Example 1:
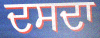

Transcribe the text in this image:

ਦਸਦਾ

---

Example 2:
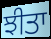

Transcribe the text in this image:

ਝੀਤਾ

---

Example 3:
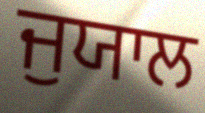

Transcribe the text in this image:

ਜੁਯਾਲ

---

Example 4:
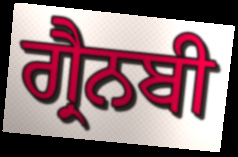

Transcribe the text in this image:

ਗ੍ਰੈਨਬੀ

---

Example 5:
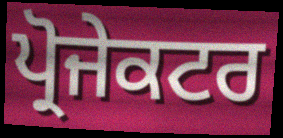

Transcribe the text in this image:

ਪ੍ਰੋਜੇਕਟਰ